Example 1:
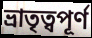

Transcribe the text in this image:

ভ্ৰাতৃত্বপূৰ্ণ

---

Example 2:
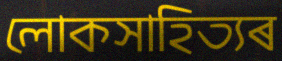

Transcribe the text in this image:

লোকসাহিত্যৰ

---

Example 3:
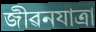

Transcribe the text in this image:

জীৱনযাত্ৰা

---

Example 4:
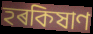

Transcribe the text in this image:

হৰকিষাণ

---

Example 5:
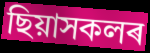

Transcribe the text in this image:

ছিয়াসকলৰ